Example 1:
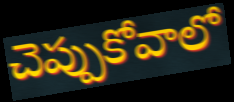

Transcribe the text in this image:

చెప్పుకోవాలో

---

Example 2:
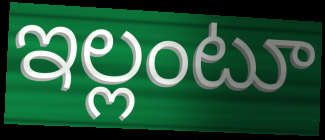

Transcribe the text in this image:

ఇల్లంటూ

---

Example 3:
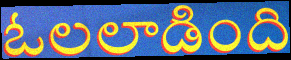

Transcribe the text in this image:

ఓలలాడింది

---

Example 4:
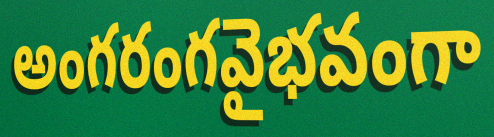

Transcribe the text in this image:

అంగరంగవైభవంగా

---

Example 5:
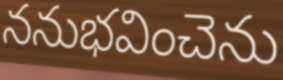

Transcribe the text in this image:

ననుభవించెను